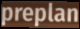
preplan